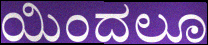
ಯಿಂದಲೂ